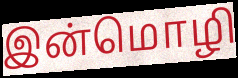
இன்மொழி